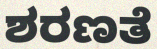
ಶರಣತೆ